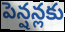
పెన్షన్లకు